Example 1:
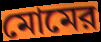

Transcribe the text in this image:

মোমের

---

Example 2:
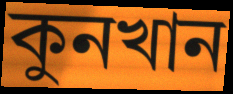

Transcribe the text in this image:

কুনখান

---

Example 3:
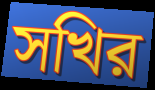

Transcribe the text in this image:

সখির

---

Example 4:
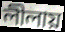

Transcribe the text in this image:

লীলায়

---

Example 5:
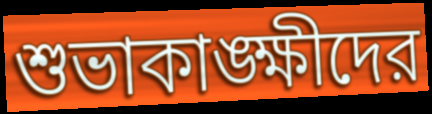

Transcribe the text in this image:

শুভাকাঙ্ক্ষীদের